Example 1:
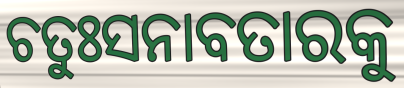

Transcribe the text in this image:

ଚତୁଃସନାବତାରକୁ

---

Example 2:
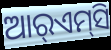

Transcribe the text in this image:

ଆର୍‌ଏମ୍‌ସି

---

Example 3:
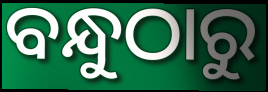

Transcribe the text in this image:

ବନ୍ଧୁଠାରୁ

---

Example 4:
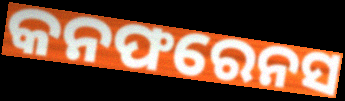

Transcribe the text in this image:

କନଫରେନସ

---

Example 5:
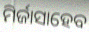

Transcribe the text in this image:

ମିର୍ଜାସାହେବ